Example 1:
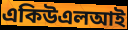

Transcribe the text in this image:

একিউএলআই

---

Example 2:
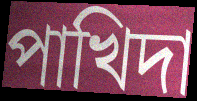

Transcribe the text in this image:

পাখিদা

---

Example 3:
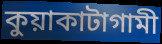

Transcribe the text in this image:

কুয়াকাটাগামী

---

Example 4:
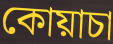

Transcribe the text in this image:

কোয়াচা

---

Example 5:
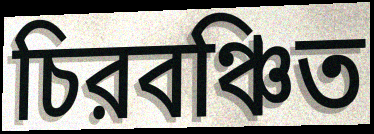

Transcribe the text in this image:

চিরবঞ্চিত